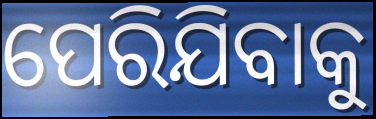
ପେରିଯିବାକୁ